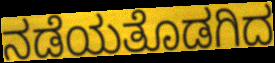
ನಡೆಯತೊಡಗಿದ